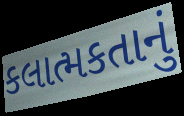
કલાત્મકતાનું